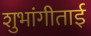
शुभांगीताई